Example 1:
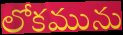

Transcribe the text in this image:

లోకమును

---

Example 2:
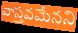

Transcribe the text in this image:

వాస్తవమేనని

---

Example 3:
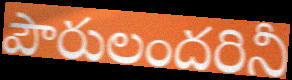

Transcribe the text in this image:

పౌరులందరినీ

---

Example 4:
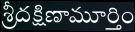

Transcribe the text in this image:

శ్రీదక్షిణామూర్తిం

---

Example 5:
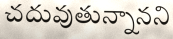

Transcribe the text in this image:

చదువుతున్నానని